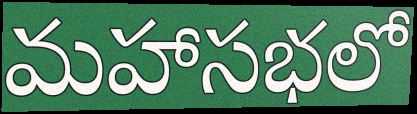
మహాసభలో